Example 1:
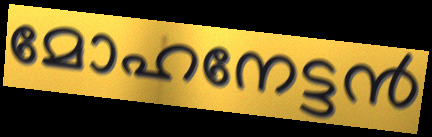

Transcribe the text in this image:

മോഹനേട്ടൻ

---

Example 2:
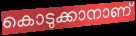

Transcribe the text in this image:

കൊടുക്കാനാണ്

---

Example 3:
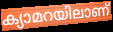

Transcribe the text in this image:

ക്യാമറയിലാണ്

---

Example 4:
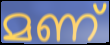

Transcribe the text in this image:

മണ്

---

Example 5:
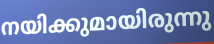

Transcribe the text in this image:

നയിക്കുമായിരുന്നു